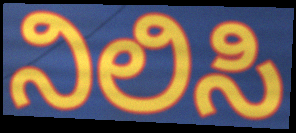
ನಿಲಿಸಿ